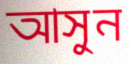
আসুন